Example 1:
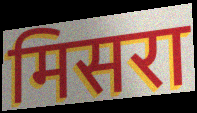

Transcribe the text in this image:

मिसरा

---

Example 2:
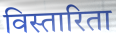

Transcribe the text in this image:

विस्तारिता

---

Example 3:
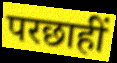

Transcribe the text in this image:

परछाहीं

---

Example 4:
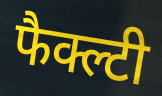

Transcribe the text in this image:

फैक्ल्टी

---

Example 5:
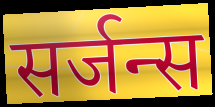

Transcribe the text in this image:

सर्जन्स